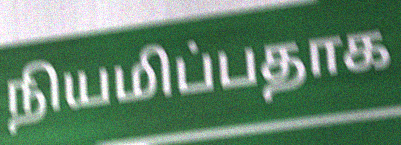
நியமிப்பதாக